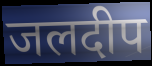
जलदीप